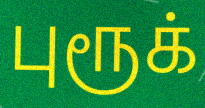
புரூக்